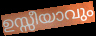
ഉസ്സീയാവും